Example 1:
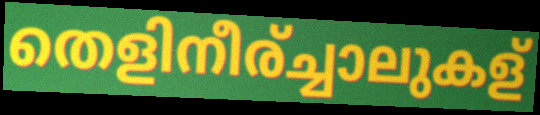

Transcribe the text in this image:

തെളിനീര്ച്ചാലുകള്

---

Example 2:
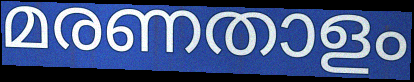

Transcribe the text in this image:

മരണതാളം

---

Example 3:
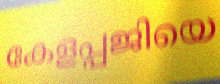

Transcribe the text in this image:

കേളപ്പജിയെ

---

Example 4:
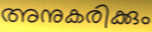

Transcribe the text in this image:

അനുകരിക്കും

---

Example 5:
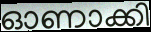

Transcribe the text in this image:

ഓണാക്കി